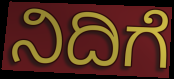
ನಿದಿಗೆ